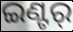
ଇଣ୍ଟର୍